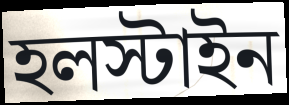
হলস্টাইন